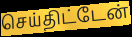
செய்திட்டேன்